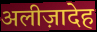
अलीज़ादेह